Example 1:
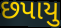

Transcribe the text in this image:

છપાયુ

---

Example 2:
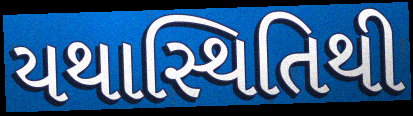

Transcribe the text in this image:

યથાસ્થિતિથી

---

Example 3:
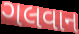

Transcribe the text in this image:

ગલવાન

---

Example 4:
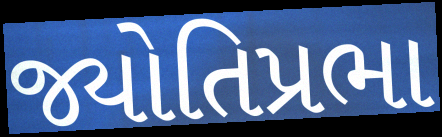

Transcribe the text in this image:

જ્યોતિપ્રભા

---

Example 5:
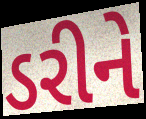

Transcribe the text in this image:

ડરીને